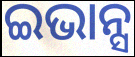
ଇଭାନ୍ସ